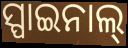
ସ୍ପାଇନାଲ୍